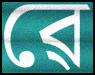
ৱে